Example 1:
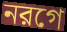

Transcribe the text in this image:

নরগে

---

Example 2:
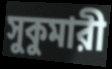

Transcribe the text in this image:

সুকুমারী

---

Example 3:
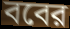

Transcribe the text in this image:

ববের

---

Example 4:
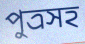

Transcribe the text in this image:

পুত্রসহ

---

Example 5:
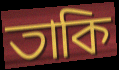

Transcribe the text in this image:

তাকি